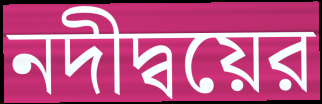
নদীদ্বয়ের